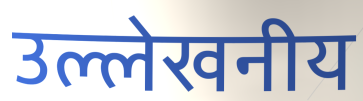
उल्लेखनीय